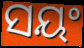
ସୟଂ